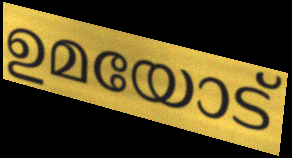
ഉമയോട്